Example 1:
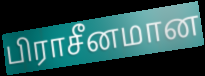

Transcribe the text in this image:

பிராசீனமான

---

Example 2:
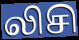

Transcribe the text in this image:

லிசி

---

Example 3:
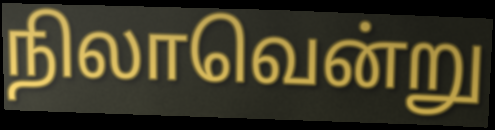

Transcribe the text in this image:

நிலாவென்று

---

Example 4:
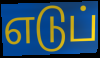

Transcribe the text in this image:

எடுப்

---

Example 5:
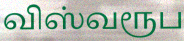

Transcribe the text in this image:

விஸ்வரூப